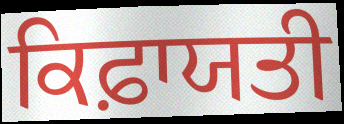
ਕਿਫ਼ਾਯਤੀ